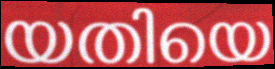
യതിയെ